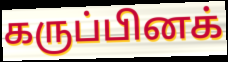
கருப்பினக்